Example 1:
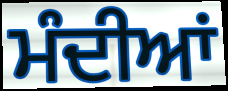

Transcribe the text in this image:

ਮੰਦੀਆਂ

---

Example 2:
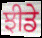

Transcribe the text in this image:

ਝੀਡੇ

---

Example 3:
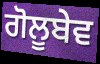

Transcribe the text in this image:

ਗੋਲੂਬੇਵ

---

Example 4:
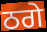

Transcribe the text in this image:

ਠਗੇ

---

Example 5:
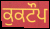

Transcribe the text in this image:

ਕੁਕਟੌਪ